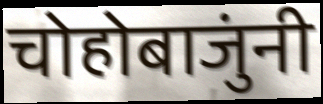
चोहोबाजुंनी